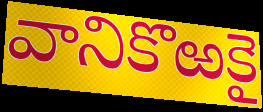
వానికొఱకై